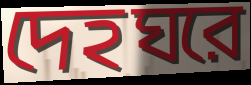
দেহঘরে